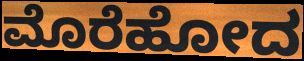
ಮೊರೆಹೋದ